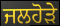
ਜਲਹੋੜੇ